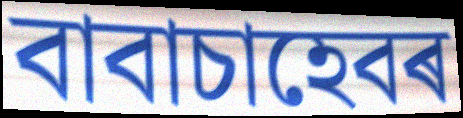
বাবাচাহেবৰ